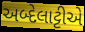
અબ્દેલાટ્ટીએ